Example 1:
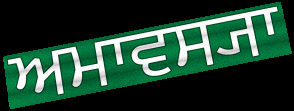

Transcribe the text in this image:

ਅਮਾਵਸ੍ਯਾ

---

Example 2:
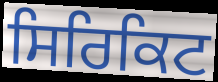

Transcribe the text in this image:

ਸਿਰਿਕਿਟ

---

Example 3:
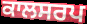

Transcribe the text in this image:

ਕਾਲਸਰਪ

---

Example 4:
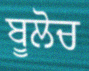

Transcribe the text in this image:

ਬੂਲੋਚ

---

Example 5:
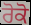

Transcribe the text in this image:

ਰੋਕੋ